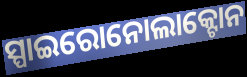
ସ୍ପାଇରୋନୋଲାକ୍ଟୋନ